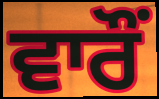
ਵਾਰੌਂ